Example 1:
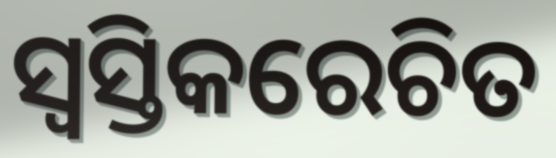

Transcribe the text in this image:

ସ୍ୱସ୍ତିକରେଚିତ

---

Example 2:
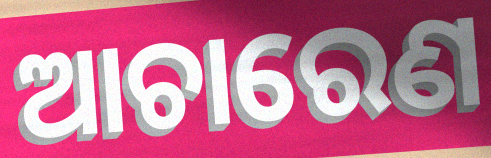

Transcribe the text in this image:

ଆଚାରେଣ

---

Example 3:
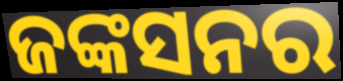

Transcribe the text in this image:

ଜଙ୍କସନର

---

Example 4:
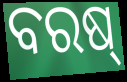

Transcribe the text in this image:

ବରଷ୍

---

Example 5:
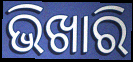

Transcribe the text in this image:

ଭିଖାରି